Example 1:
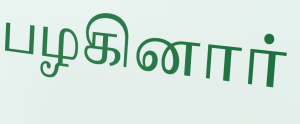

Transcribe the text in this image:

பழகினார்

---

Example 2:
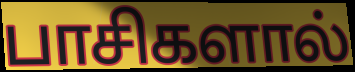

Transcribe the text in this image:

பாசிகளால்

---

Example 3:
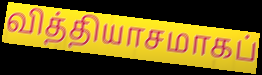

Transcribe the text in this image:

வித்தியாசமாகப்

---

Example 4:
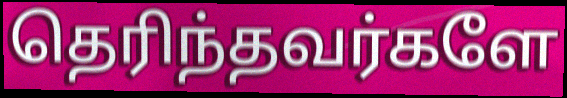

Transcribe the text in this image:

தெரிந்தவர்களே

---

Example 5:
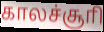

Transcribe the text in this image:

காலச்சூரி